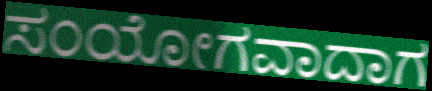
ಸಂಯೋಗವಾದಾಗ